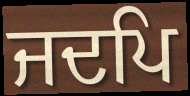
ਜਦਪਿ